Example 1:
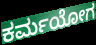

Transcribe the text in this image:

ಕರ್ಮಯೋಗ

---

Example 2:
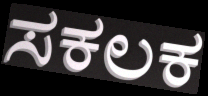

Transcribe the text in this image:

ಸಕಲಕ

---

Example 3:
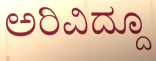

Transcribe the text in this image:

ಅರಿವಿದ್ದೂ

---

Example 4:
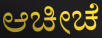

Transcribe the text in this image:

ಆಚೀಚೆ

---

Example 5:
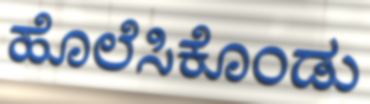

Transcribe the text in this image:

ಹೊಲೆಸಿಕೊಂಡು